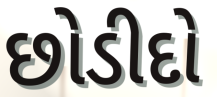
છોડીદો